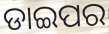
ଡାଇପର